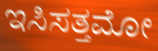
ಇಸಿಸತ್ತಮೋ